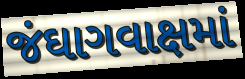
જંઘાગવાક્ષમાં